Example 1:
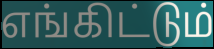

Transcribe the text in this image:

எங்கிட்டும்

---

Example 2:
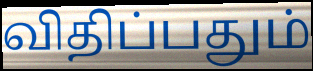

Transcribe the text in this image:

விதிப்பதும்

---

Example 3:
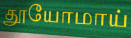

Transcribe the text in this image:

தூயோமாய்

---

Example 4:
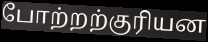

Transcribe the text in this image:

போற்றற்குரியன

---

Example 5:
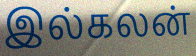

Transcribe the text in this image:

இல்கலன்